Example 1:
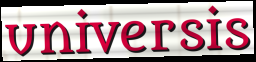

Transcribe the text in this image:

universis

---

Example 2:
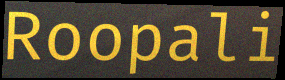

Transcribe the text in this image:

Roopali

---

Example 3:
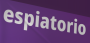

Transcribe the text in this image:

espiatorio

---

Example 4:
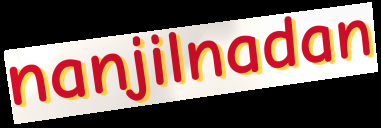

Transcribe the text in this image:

nanjilnadan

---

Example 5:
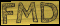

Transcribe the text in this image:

FMD